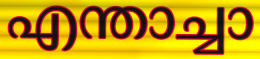
എന്താച്ചാ